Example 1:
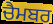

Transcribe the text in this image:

ਚੈਮਬਰ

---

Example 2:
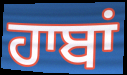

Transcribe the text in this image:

ਹਾਬਾਂ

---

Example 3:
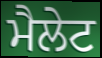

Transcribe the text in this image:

ਮੈਲੇਟ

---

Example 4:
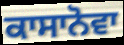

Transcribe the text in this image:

ਕਾਸਾਨੋਵਾ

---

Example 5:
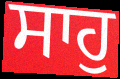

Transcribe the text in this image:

ਸਾਹੁ